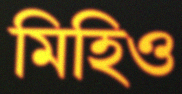
মিহিও